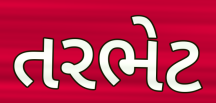
તરભેટ